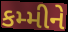
કમ્મીને